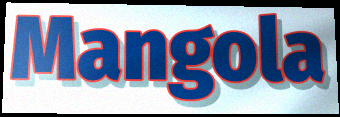
Mangola